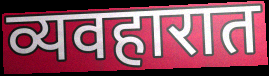
व्यवहारात